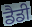
ਡੈਡੀ